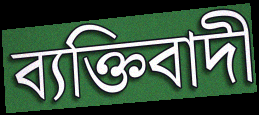
ব্যক্তিবাদী